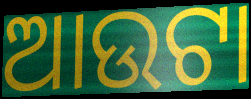
ଆଉଟା